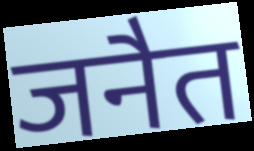
जनैत